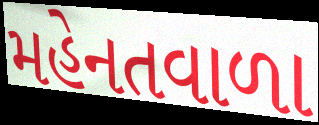
મહેનતવાળા